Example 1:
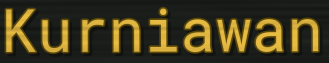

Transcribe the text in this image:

Kurniawan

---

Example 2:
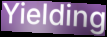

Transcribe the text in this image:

Yielding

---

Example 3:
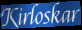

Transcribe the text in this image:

Kirloskar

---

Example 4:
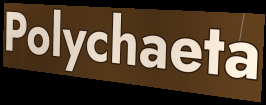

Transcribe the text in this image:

Polychaeta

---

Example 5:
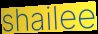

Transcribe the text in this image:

shailee